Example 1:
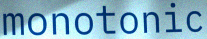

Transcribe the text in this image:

monotonic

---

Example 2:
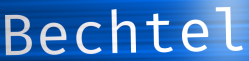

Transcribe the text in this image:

Bechtel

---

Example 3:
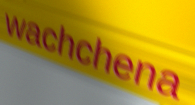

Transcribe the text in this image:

wachchena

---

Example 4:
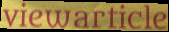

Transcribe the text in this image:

viewarticle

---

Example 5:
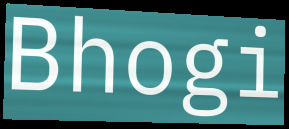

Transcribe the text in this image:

Bhogi